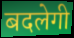
बदलेगी